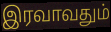
இரவாவதும்